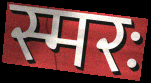
स्मरः